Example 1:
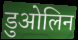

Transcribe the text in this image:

डुओलिन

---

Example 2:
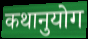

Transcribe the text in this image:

कथानुयोग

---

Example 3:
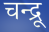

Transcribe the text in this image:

चन्द्रू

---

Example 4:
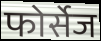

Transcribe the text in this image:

फोर्सेज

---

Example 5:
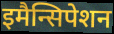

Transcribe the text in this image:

इमैन्सिपेशन